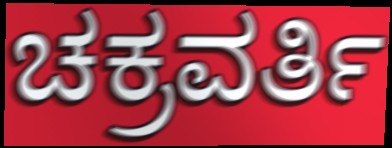
ಚಕ್ರವರ್ತಿ